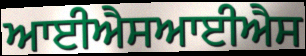
ਆਈਐਸਆਈਐਸ